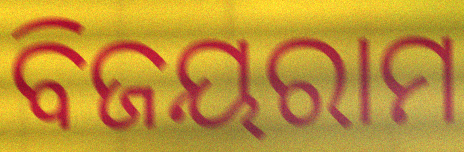
ବିଜୟରାମ